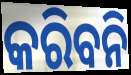
କରିବନି